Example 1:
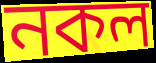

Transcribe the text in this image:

নকল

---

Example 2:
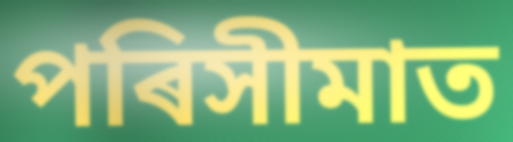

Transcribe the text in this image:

পৰিসীমাত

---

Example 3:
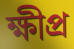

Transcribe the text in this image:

ক্ষীপ্ৰ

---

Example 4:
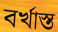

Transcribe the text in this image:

বৰ্খাস্ত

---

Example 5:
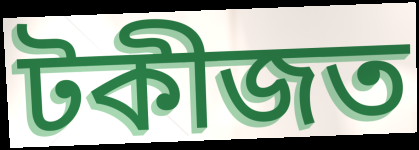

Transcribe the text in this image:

টকীজত